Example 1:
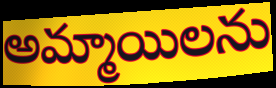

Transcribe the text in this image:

అమ్మాయిలను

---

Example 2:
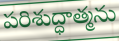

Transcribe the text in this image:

పరిశుద్ధాత్మను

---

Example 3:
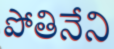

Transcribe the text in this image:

పోతినేని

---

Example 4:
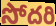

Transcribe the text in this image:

సోదరి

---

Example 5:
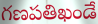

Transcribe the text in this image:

గణపతిఖండే